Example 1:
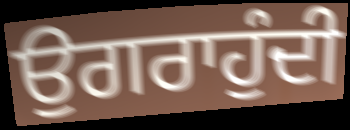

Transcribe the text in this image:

ਉਗਰਾਹੁੰਦੀ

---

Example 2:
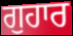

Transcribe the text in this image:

ਗੁਹਾਰ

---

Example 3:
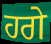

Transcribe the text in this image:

ਹਗੇ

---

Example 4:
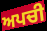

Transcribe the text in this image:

ਅਪਚੀ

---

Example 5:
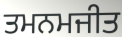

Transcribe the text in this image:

ਤਮਨਮਜੀਤ